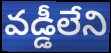
వడ్డీలేని